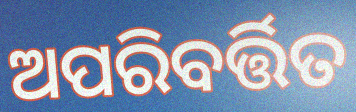
ଅପରିବର୍ତ୍ତିତ